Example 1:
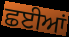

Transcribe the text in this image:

ਛਈਆਂ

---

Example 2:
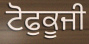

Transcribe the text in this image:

ਟੋਫੁਕੂਜੀ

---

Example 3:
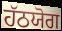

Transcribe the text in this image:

ਹੱਠਯੋਗ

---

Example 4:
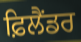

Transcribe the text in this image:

ਫ਼ਿਲੈਂਡਰ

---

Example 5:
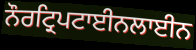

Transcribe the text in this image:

ਨੌਰਟ੍ਰਿਪਟਾਈਨਲਾਈਨ